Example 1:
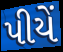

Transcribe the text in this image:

પીયેં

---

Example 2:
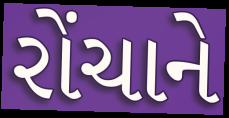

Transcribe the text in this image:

રોંચાને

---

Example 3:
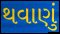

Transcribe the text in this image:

થવાણું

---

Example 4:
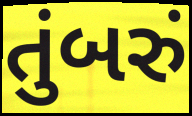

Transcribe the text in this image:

તુંબરું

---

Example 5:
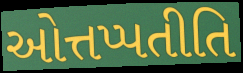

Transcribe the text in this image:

ઓત્તપ્પતીતિ